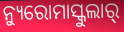
ନ୍ୟୁରୋମାସ୍କୁଲାର୍